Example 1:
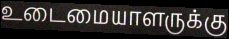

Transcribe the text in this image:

உடைமையாளருக்கு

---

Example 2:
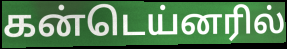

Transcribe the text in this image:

கன்டெய்னரில்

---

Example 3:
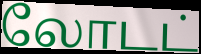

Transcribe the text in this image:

லோடட்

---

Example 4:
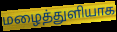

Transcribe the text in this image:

மழைத்துளியாக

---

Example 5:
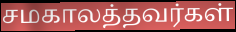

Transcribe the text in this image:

சமகாலத்தவர்கள்